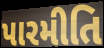
પારમીતિ